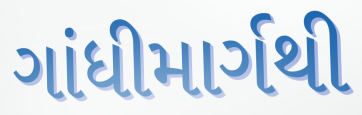
ગાંધીમાર્ગથી